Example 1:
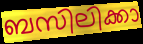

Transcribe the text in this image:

ബസിലിക്കാ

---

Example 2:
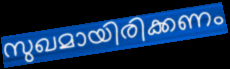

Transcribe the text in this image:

സുഖമായിരിക്കണം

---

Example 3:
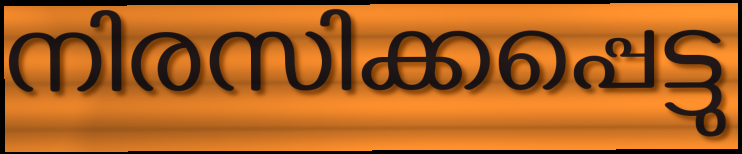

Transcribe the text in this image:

നിരസിക്കപ്പെട്ടു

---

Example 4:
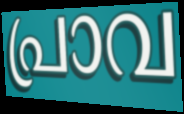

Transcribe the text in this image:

പ്രാവ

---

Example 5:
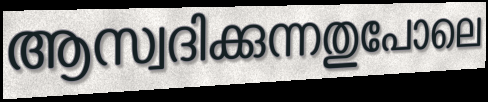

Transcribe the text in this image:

ആസ്വദിക്കുന്നതുപോലെ